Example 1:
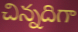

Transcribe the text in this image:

చిన్నదిగా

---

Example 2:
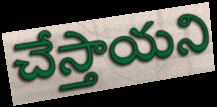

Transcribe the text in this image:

చేస్తాయని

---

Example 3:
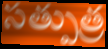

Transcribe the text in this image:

సత్పుత్ర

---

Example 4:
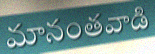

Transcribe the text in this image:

మానంతవాడి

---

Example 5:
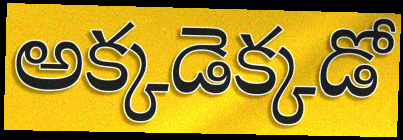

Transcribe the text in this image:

అక్కడెక్కడో